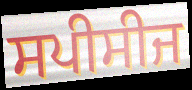
ਸਪੀਸੀਜ